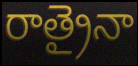
రాత్రైనా